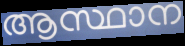
ആസ്ഥാന